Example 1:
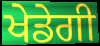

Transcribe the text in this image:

ਖੇਡੇਗੀ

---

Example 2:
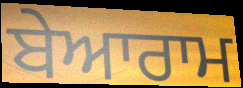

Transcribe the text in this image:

ਬੇਆਰਾਮ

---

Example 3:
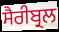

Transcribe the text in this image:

ਸੈਰੀਬ੍ਰਲ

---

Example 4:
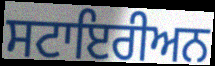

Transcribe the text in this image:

ਸਟਾਇਰੀਅਨ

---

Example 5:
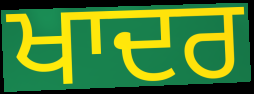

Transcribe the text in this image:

ਖਾਦਰ